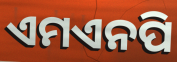
ଏମଏନପି